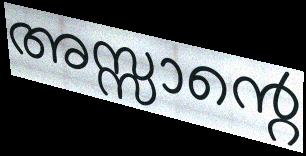
അസ്സാന്റെ